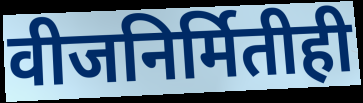
वीजनिर्मितीही